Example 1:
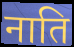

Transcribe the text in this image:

नाति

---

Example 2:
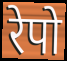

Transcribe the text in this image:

रेपो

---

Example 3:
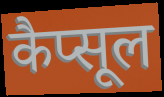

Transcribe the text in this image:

कैप्सूल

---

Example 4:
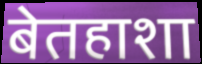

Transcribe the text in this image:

बेतहाशा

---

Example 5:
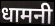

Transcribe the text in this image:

धामनी